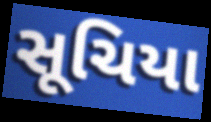
સૂચિયા